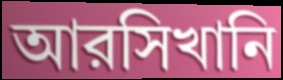
আরসিখানি